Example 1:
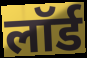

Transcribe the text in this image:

लॉर्ड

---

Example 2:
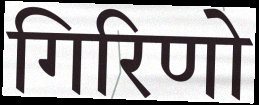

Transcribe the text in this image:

गिरिणो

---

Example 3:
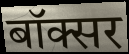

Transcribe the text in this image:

बॉक्सर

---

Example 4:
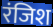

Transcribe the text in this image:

रंजिश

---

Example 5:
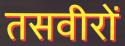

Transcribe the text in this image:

तसवीरों